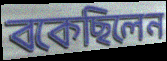
বকেছিলেন